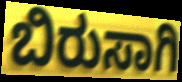
ಬಿರುಸಾಗಿ